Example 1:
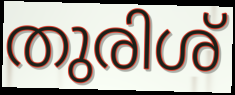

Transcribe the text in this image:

തുരിശ്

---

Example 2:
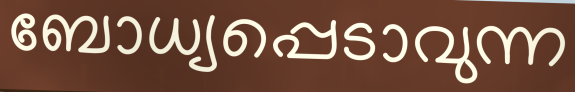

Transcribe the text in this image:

ബോധ്യപ്പെടാവുന്ന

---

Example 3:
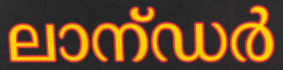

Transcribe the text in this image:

ലാന്ഡർ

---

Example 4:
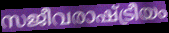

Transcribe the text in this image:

സജീവരാഷ്ട്രീയം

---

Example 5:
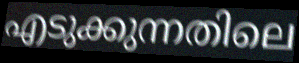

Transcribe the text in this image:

എടുക്കുന്നതിലെ